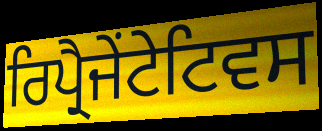
ਰਿਪ੍ਰੈਜੇਂਟੇਟਿਵਸ